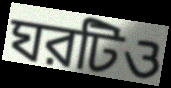
ঘরটিও